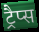
ट्रैप्स